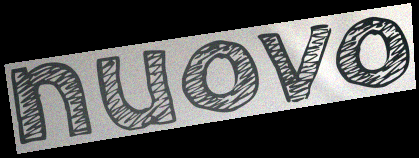
nuovo